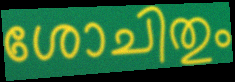
ശോചിതും